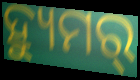
ହ୍ୟୁମର୍